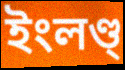
ইংলণ্ড্